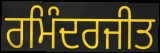
ਰਮਿੰਦਰਜੀਤ